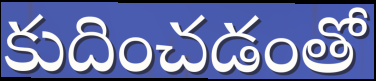
కుదించడంతో